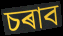
চৰাব